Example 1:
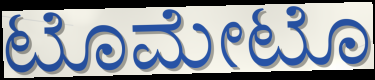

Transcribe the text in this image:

ಟೊಮೇಟೊ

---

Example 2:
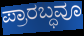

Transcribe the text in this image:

ಪ್ರಾರಬ್ಧವೂ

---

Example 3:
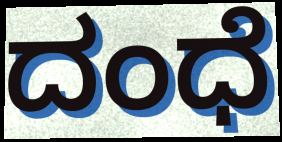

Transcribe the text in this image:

ದಂಧೆ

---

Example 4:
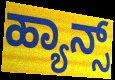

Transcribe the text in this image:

ಹ್ಯಾನ್ಸ್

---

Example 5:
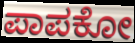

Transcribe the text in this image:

ಪಾಪಕೋ